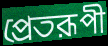
প্রেতরূপী